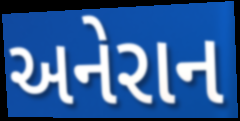
અનેરાન